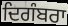
ਦਿਗੰਬਰਾ